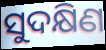
ସୁଦକ୍ଷିଣ